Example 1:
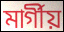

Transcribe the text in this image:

মার্গীয়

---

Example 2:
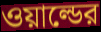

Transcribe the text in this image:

ওয়াল্ডের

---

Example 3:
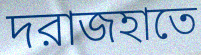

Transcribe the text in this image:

দরাজহাতে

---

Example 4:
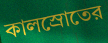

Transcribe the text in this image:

কালস্রোতের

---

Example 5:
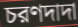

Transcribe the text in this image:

চরণদাদা